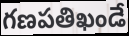
గణపతిఖండే